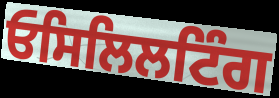
ਓਸਿਲਿਲਟਿੰਗ